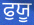
ਫੁਯੂ